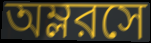
অম্লরসে